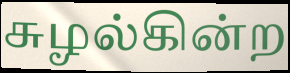
சுழல்கின்ற